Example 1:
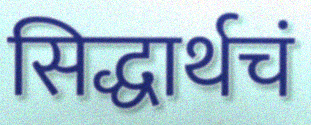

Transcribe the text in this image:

सिद्धार्थचं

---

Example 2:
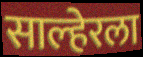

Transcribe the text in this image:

साल्हेरला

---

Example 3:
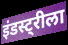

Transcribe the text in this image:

इंडस्ट्रीला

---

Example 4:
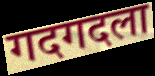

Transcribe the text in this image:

गदगदला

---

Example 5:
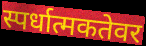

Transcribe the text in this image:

स्पर्धात्मकतेवर